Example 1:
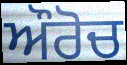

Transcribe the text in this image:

ਔਰੋਚ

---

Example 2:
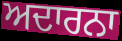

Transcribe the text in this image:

ਅਦਾਰਨਾ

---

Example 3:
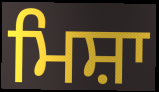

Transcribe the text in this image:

ਮਿਸ਼ਾ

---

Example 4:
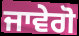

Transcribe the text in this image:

ਜਾਵੇਗੋ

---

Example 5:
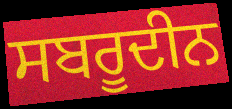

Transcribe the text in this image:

ਸਬਰੂਦੀਨ